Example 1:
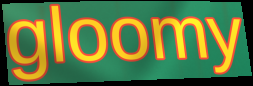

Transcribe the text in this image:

gloomy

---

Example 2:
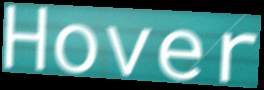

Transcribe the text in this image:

Hover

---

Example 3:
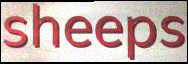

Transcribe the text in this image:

sheeps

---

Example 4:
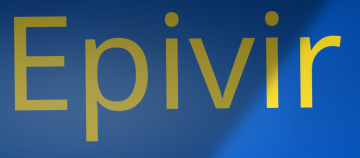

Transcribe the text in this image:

Epivir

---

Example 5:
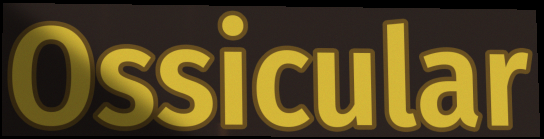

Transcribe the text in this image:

Ossicular